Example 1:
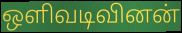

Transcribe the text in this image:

ஒளிவடிவினன்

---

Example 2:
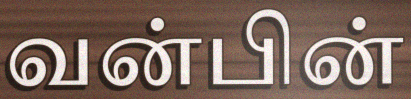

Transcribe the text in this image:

வன்பின்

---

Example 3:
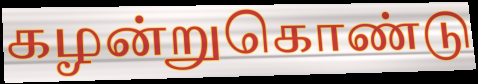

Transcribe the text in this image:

கழன்றுகொண்டு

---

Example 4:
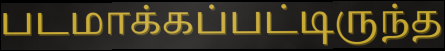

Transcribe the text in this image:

படமாக்கப்பட்டிருந்த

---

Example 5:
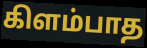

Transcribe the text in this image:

கிளம்பாத